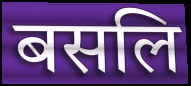
बसलि